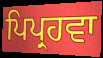
ਪਿਪ੍ਰਹਵਾ